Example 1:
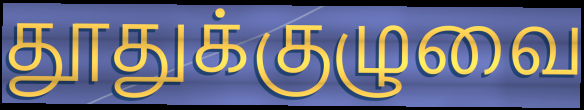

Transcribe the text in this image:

தூதுக்குழுவை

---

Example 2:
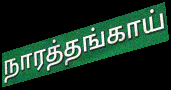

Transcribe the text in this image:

நாரத்தங்காய்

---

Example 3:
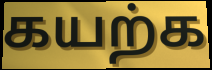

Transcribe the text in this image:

கயற்க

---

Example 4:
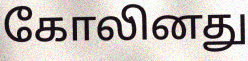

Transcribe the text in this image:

கோலினது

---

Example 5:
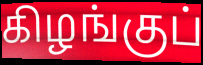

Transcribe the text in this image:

கிழங்குப்